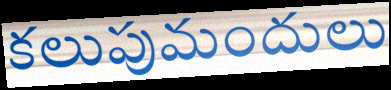
కలుపుమందులు